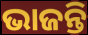
ଭାଜନ୍ତି